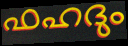
ഫഹദും